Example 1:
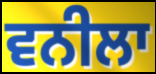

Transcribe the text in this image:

ਵਨੀਲਾ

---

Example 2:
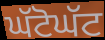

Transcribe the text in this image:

ਘੱਟੋਘੱਟ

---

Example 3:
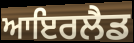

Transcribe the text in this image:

ਆਇਰਲੈਡ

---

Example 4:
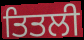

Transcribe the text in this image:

ਤਿਤਲੀ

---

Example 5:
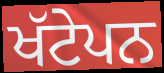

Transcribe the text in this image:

ਖੱਟੇਪਨ